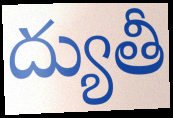
ద్యుతీ